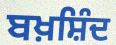
ਬਖ਼ਸ਼ਿੰਦ